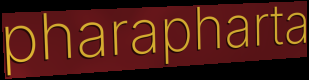
pharapharta